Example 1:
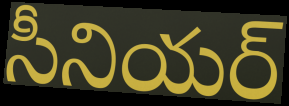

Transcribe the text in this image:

సీనియర్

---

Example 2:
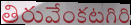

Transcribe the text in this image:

తిరువేంకటగిరి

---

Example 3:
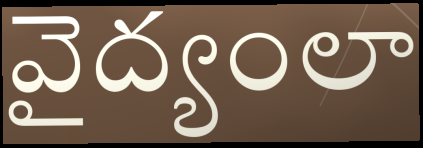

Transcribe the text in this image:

వైద్యంలా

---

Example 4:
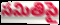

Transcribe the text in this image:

సమితిపై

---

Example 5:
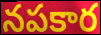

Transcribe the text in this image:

నపకార